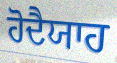
ਹੋਦੈਯਾਹ